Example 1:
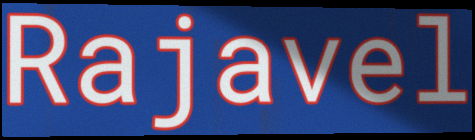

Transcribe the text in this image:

Rajavel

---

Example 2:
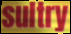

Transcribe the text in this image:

sultry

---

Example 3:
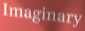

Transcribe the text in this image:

Imaginary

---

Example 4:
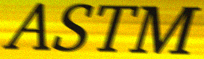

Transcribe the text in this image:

ASTM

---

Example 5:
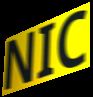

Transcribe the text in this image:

NIC